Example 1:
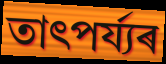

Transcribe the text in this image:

তাৎপৰ্য্যৰ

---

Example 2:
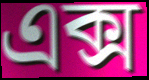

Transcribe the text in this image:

এক্স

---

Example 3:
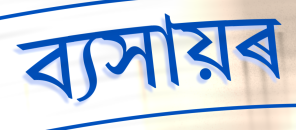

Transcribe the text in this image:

ব্যসায়ৰ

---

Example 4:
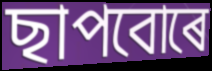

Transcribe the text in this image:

ছাপবোৰে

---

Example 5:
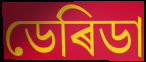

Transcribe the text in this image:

ডেৰিডা